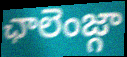
ఛాలెంజ్గా